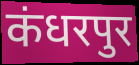
कंधरपुर